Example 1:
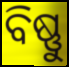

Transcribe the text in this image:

ବିଷ୍ଣୁ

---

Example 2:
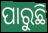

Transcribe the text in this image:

ପାରୁଛି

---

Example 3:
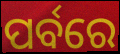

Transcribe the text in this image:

ପର୍ବରେ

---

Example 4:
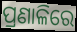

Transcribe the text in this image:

ପ୍ରଣାଳିରେ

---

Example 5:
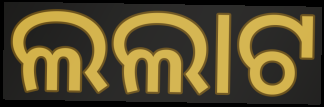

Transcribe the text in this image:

ଲଲାଟ